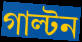
গাল্টন